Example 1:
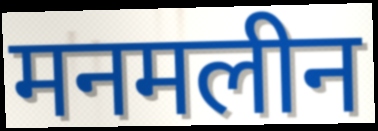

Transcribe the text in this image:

मनमलीन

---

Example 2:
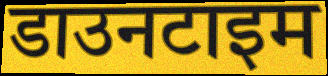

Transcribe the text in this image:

डाउनटाइम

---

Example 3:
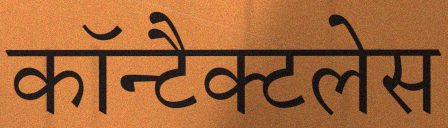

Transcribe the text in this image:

कॉन्टैक्टलेस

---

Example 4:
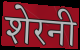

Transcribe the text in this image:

शेरनी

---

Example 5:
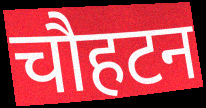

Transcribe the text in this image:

चौहटन